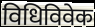
विधिविवेक